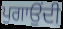
ਪੁਗਾਉਂਦੀ